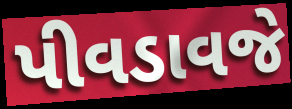
પીવડાવજે